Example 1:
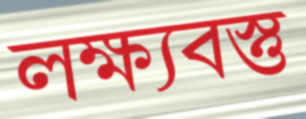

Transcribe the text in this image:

লক্ষ্যবস্তু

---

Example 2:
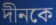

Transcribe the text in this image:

দীনকে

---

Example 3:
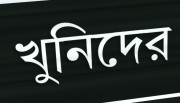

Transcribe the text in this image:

খুনিদের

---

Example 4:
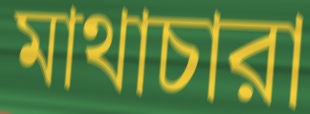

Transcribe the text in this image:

মাথাচারা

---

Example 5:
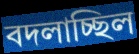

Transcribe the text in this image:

বদলাচ্ছিল